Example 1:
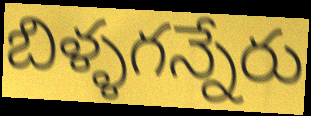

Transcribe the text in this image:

బిళ్ళగన్నేరు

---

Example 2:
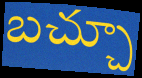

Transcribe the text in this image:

బచ్చూ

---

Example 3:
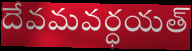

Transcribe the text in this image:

దేవమవర్ధయత్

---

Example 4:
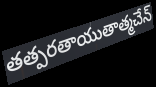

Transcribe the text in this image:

తత్పరతాయుతాత్మచేన్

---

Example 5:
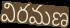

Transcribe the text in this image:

విరమణ